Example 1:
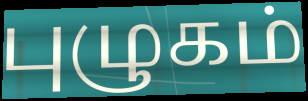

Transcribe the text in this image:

புழுகம்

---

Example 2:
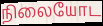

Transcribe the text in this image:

நிலையோட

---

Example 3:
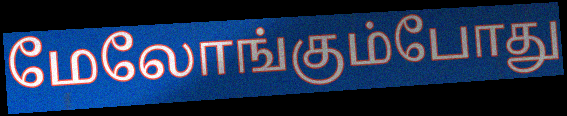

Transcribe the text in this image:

மேலோங்கும்போது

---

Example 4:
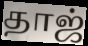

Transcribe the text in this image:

தாஜ்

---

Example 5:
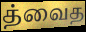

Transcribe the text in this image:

த்வைத